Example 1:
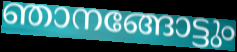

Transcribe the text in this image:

ഞാനങ്ങോട്ടും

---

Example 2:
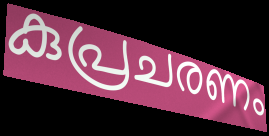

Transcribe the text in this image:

കുപ്രചരണം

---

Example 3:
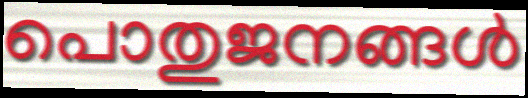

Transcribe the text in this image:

പൊതുജനങ്ങൾ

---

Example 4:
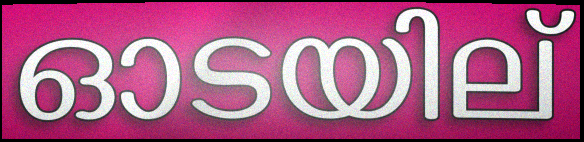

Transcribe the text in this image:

ഓടയില്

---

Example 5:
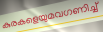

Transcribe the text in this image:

കുരകളെയുമവഗണിച്ച്